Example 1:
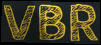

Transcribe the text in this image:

VBR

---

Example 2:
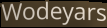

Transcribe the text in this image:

Wodeyars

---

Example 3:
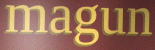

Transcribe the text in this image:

magun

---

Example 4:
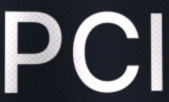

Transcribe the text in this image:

PCl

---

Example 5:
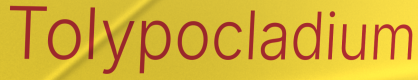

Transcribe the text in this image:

Tolypocladium